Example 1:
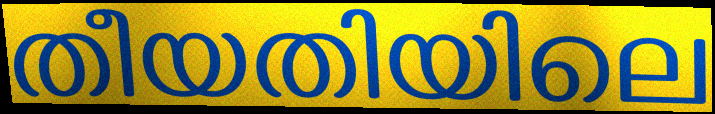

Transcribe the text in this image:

തീയതിയിലെ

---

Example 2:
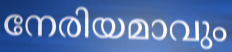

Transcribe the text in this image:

നേരിയമാവും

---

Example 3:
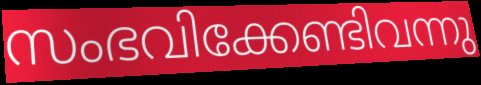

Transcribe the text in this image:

സംഭവിക്കേണ്ടിവന്നു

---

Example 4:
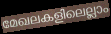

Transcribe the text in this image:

മേഖലകളിലെല്ലാം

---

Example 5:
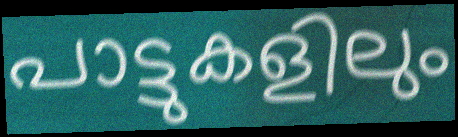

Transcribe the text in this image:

പാട്ടുകളിലും